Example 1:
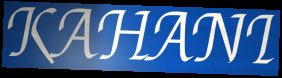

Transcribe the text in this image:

KAHANI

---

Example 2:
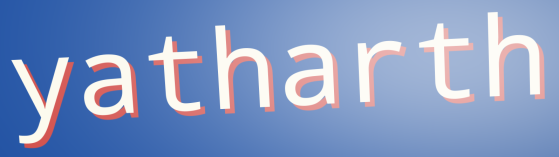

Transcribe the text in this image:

yatharth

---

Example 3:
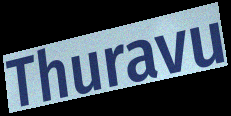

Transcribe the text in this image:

Thuravu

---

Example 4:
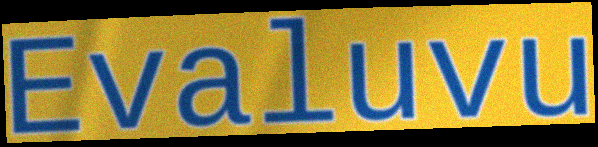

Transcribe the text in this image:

Evaluvu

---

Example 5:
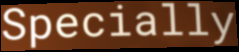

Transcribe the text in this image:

Specially